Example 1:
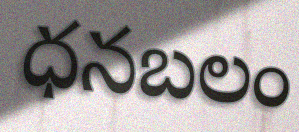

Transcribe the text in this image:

ధనబలం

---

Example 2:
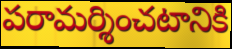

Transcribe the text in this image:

పరామర్శించటానికి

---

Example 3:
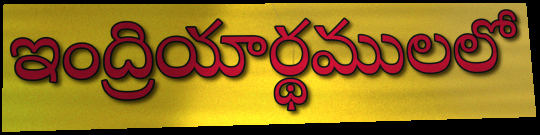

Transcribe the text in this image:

ఇంద్రియార్థములలో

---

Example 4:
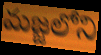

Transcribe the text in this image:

మజ్జలోని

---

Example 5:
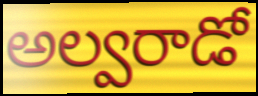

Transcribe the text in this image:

అల్వరాడో